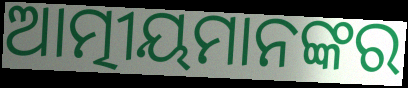
ଆତ୍ମୀୟମାନଙ୍କର